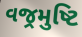
વજ્રમુષ્ટિ